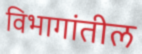
विभागांतील